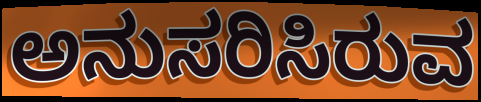
ಅನುಸರಿಸಿರುವ